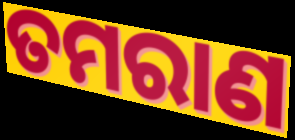
ତମରାଣ